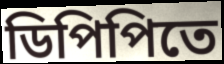
ডিপিপিতে